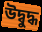
উদ্বুদ্ধ